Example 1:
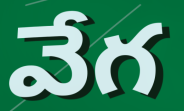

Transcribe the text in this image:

వేగ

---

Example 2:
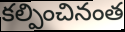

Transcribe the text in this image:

కల్పించినంత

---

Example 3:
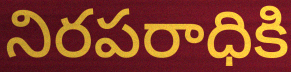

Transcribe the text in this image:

నిరపరాధికి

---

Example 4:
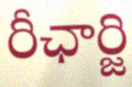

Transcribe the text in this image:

రీఛార్జి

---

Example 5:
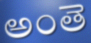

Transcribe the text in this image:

అంతె